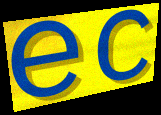
ec